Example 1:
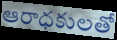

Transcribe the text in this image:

ఆరాధకులతో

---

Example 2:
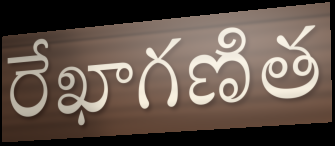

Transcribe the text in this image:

రేఖాగణిత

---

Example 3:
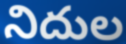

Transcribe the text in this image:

నిదుల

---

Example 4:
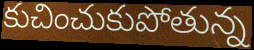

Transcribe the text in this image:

కుచించుకుపోతున్న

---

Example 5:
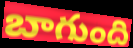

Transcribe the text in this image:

బాగుంది